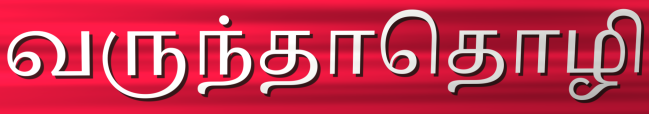
வருந்தாதொழி